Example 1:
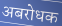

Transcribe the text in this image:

अबरोधक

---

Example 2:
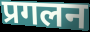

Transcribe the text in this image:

प्रगलन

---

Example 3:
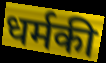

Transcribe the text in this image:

धर्मकी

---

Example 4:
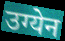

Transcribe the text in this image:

उग्येन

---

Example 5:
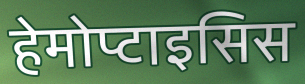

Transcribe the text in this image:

हेमोप्टाइसिस